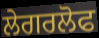
ਲੇਗਰਲੋਫ